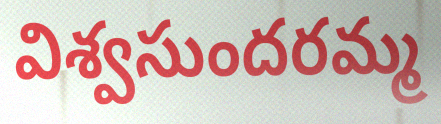
విశ్వసుందరమ్మ